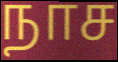
நாச